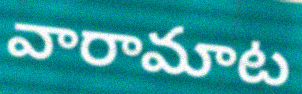
వారామాట